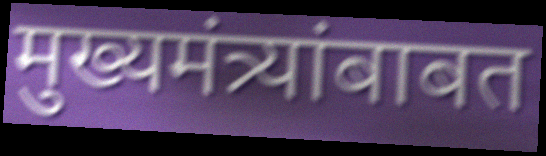
मुख्यमंत्र्यांबाबत